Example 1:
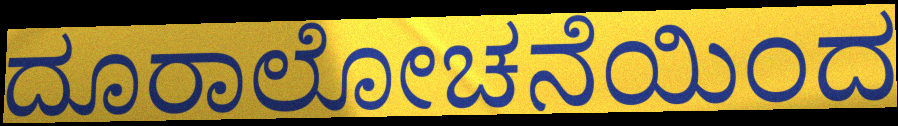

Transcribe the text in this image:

ದೂರಾಲೋಚನೆಯಿಂದ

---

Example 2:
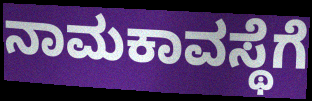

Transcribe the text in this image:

ನಾಮಕಾವಸ್ಥೆಗೆ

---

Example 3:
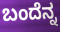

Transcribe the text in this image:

ಬಂದೆನ್ನ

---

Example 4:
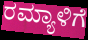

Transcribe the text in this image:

ರಮ್ಯಾಳಿಗೆ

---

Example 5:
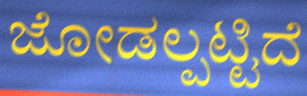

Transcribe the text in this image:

ಜೋಡಲ್ಪಟ್ಟಿದೆ